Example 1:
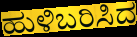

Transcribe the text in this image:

ಹುಳಿಬರಿಸಿದ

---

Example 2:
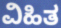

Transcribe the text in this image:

ವಿಹಿತ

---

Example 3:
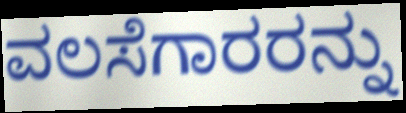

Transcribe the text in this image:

ವಲಸೆಗಾರರನ್ನು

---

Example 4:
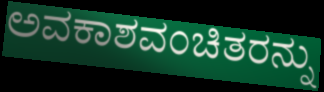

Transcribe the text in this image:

ಅವಕಾಶವಂಚಿತರನ್ನು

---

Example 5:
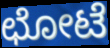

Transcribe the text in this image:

ಛೋಟೆ